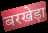
बरखेड़ा